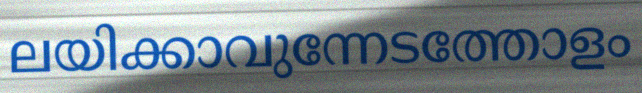
ലയിക്കാവുന്നേടത്തോളം